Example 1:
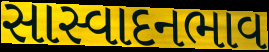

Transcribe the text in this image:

સાસ્વાદનભાવ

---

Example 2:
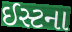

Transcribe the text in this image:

ઈસ્ટના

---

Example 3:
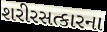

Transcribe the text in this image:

શરીરસત્કારના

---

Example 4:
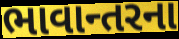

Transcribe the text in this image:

ભાવાન્તરના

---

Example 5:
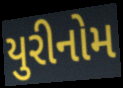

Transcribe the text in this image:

યુરીનોમ